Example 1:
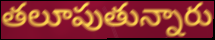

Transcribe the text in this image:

తలూపుతున్నారు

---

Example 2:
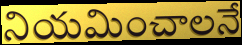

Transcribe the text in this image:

నియమించాలనే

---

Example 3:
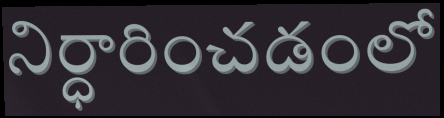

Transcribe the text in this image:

నిర్ధారించడంలో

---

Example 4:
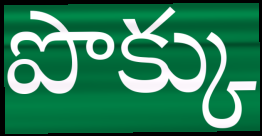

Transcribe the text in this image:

పొక్కు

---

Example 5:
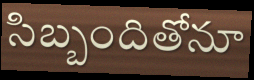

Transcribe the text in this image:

సిబ్బందితోనూ